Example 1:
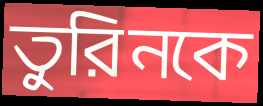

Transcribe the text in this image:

তুরিনকে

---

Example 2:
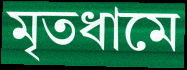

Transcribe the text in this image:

মৃতধামে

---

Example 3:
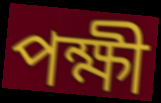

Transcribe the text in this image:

পক্ষী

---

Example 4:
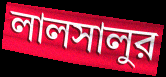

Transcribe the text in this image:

লালসালুর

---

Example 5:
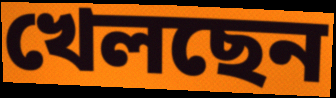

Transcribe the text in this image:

খেলছেন